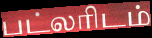
பட்லரிடம்